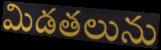
మిడతలును